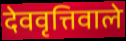
देववृत्तिवाले